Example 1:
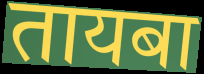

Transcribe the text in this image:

तायबा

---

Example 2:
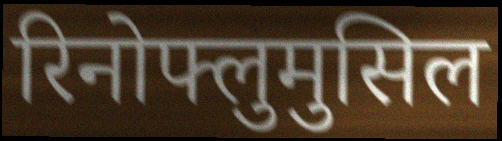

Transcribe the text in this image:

रिनोफ्लुमुसिल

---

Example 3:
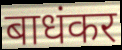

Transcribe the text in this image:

बाधंकर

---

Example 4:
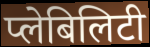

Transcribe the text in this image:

प्लेबिलिटी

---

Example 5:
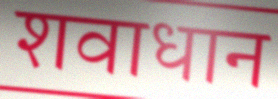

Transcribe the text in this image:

शवाधान